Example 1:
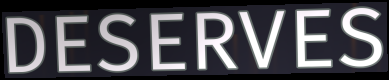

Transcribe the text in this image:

DESERVES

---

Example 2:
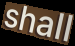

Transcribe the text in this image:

shall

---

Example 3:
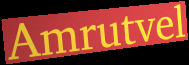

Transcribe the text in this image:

Amrutvel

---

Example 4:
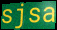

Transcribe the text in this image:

sjsa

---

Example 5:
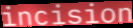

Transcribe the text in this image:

incision